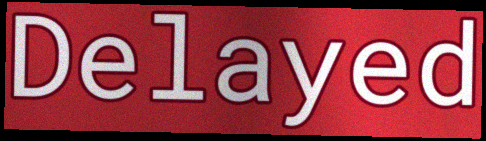
Delayed